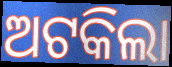
ଅଟକିଲା